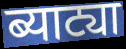
ब्याट्या